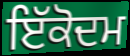
ਇੱਕੋਦਮ